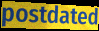
postdated